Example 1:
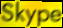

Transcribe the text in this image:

Skype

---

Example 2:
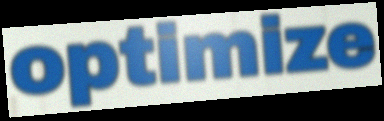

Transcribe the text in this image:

optimize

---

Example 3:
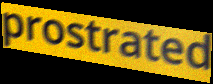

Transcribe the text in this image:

prostrated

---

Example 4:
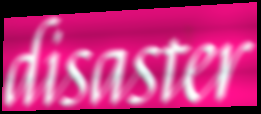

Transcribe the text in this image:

disaster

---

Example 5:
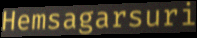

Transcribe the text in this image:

Hemsagarsuri